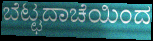
ಬೆಟ್ಟದಾಚೆಯಿಂದ